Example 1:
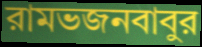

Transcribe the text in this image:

রামভজনবাবুর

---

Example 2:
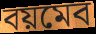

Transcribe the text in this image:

বয়মেব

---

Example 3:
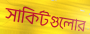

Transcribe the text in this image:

সার্কিটগুলোর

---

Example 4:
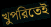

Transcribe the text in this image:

খুপরিতেই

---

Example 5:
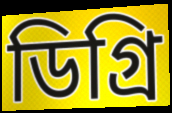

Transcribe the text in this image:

ডিগ্রি